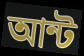
আন্ট